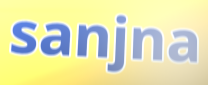
sanjna